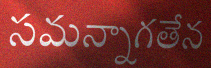
సమన్నాగతేన